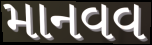
માનવવ